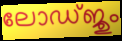
ലോഡ്ജും